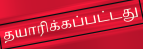
தயாரிக்கப்பட்டது